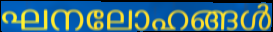
ഘനലോഹങ്ങൾ